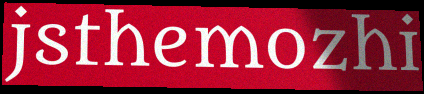
jsthemozhi